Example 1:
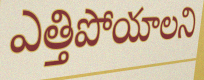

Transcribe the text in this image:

ఎత్తిపోయాలని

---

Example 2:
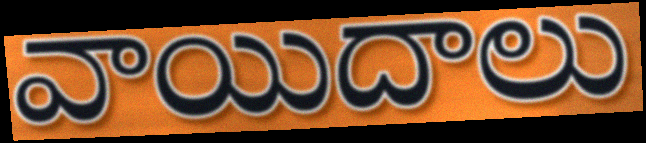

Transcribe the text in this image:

వాయిదాలు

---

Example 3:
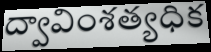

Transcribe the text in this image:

ద్వావింశత్యధిక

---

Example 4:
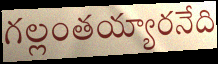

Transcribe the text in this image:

గల్లంతయ్యారనేది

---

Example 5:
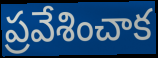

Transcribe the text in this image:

ప్రవేశించాక